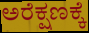
ಅರೆಕ್ಷಣಕ್ಕೆ